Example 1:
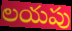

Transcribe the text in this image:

లయపు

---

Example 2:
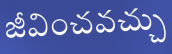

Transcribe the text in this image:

జీవించవచ్చు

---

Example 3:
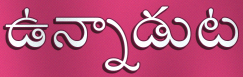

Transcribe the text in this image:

ఉన్నాడుట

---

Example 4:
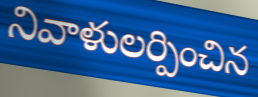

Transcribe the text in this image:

నివాళులర్పించిన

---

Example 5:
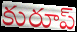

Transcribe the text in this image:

కురూప్